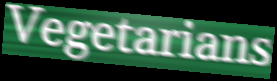
Vegetarians